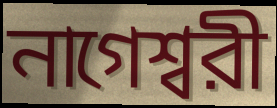
নাগেশ্বরী